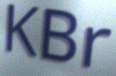
KBr